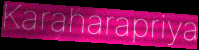
Karaharapriya